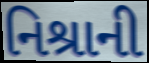
નિશ્રાની